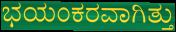
ಭಯಂಕರವಾಗಿತ್ತು